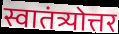
स्वातंत्र्योत्तर